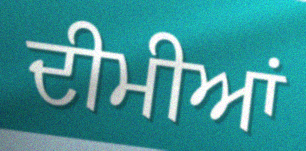
ਦੀਮੀਆਂ